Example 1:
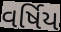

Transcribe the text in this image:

વર્ષિય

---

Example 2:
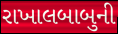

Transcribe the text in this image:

રાખાલબાબુની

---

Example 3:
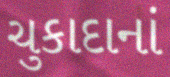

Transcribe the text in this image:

ચુકાદાનાં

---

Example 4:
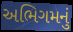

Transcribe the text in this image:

અભિગમનું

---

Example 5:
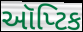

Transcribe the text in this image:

ઑપ્ટિક